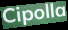
Cipolla